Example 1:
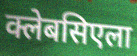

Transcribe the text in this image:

क्लेबसिएला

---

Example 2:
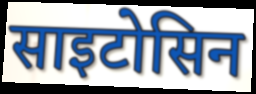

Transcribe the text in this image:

साइटोसिन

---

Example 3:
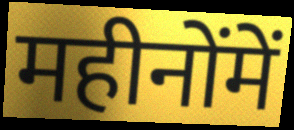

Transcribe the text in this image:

महीनोंमें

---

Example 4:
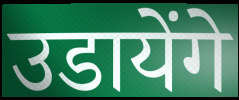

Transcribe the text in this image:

उडायेंगे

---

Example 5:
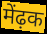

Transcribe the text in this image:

मेंढ़क